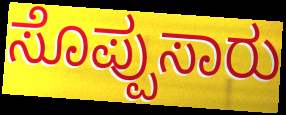
ಸೊಪ್ಪುಸಾರು